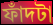
ফাঁদটা